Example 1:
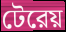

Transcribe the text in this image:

টেরেয়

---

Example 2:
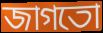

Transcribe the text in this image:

জাগতো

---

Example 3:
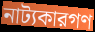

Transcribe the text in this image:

নাট্যকারগণ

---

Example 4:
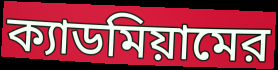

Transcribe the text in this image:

ক্যাডমিয়ামের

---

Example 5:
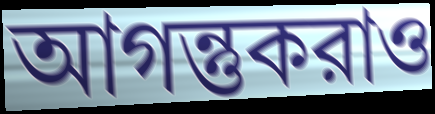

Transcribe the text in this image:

আগন্তুকরাও